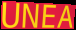
UNEA